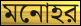
মনোহর